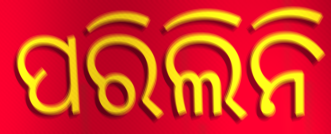
ପରିଲିନି